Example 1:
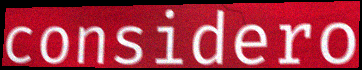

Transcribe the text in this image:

considero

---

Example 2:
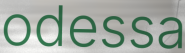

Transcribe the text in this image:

odessa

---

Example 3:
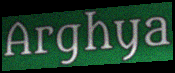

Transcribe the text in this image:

Arghya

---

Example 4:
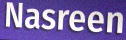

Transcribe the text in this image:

Nasreen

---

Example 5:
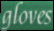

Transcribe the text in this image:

gloves